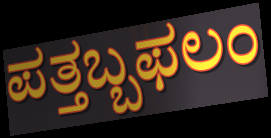
ಪತ್ತಬ್ಬಫಲಂ